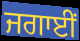
ਜਗਾਈਂ